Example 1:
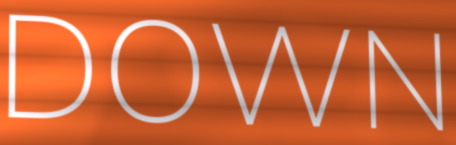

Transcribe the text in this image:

DOWN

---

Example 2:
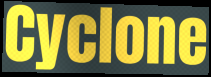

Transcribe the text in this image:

Cyclone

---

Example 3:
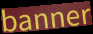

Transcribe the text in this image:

banner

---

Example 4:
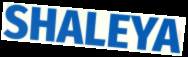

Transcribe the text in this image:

SHALEYA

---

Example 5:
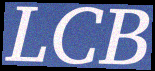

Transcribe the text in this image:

LCB